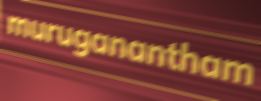
muruganantham